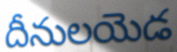
దీనులయెడ